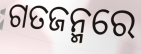
ଗତଜନ୍ମରେ